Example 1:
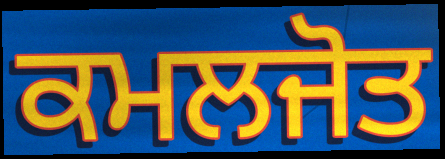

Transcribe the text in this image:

ਕਮਲਜੋਤ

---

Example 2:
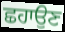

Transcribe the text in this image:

ਛਹਾਉਣ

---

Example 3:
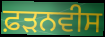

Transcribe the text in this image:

ਫ਼ੜਨਵੀਸ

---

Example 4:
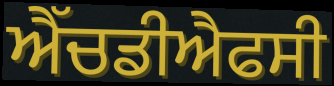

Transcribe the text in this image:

ਐੱਚਡੀਐਫਸੀ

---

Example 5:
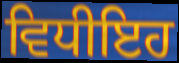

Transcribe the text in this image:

ਵਿਧੀਇਹ